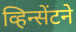
व्हिन्सेंटने